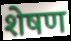
शेषण